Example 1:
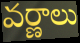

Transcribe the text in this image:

వర్ణాలు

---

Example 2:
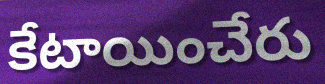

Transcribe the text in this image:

కేటాయించేరు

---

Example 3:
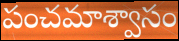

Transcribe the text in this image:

పంచమాశ్వాసం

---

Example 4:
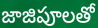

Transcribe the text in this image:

జాజిపూలతో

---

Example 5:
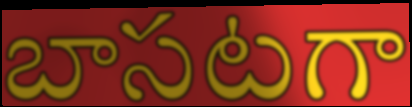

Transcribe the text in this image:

బాసటగా